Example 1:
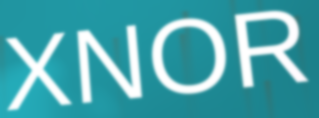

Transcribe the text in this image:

XNOR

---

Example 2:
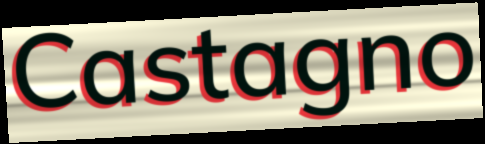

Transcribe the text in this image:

Castagno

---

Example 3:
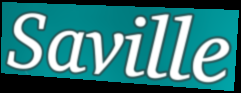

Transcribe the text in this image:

Saville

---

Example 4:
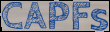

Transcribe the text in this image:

CAPFs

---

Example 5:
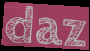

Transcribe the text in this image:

daz